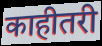
काहीतरी